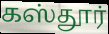
கஸ்தூர்